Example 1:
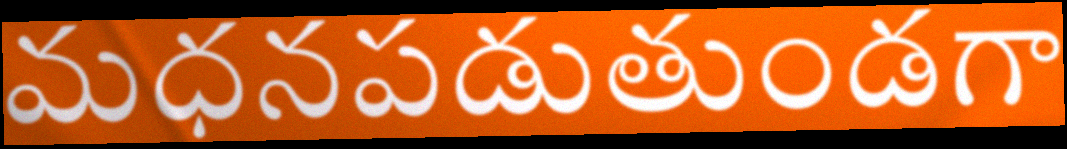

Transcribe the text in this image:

మధనపడుతుండగా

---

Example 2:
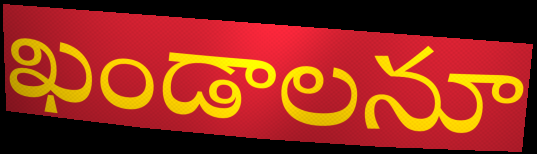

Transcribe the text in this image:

ఖండాలనూ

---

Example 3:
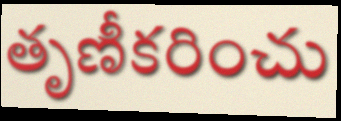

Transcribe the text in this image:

తృణీకరించు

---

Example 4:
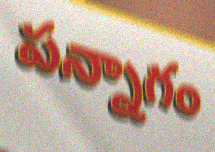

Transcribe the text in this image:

పన్నాగం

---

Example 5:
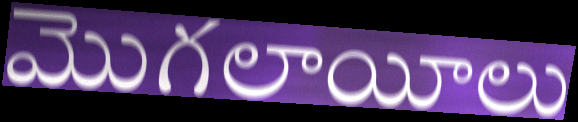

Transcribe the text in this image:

మొగలాయీలు